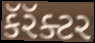
કૅરૅક્ટર